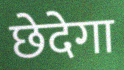
छेदेगा